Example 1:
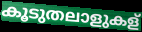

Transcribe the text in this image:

കൂടുതലാളുകള്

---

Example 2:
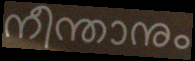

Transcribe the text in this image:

നീന്താനും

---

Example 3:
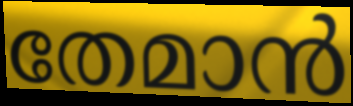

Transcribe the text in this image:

തേമാൻ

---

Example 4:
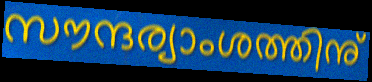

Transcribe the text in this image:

സൗന്ദര്യാംശത്തിനു്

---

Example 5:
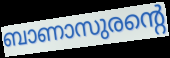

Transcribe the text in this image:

ബാണാസുരന്റെ